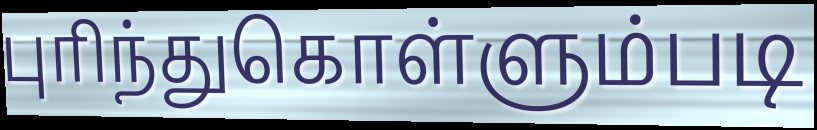
புரிந்துகொள்ளும்படி